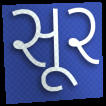
સૂર